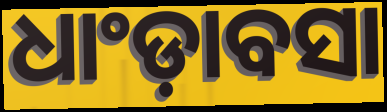
ଧାଂଡ଼ାବସା